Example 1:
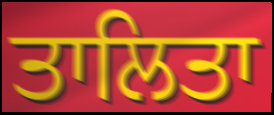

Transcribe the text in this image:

ਤਾਲਿਤਾ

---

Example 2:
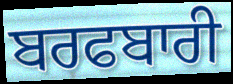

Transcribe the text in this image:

ਬਰਫਬਾਰੀ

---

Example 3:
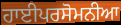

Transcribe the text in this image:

ਹਾਈਪਰਸੋਮਨੀਆ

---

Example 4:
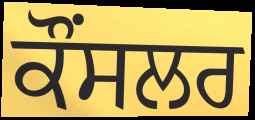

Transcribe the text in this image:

ਕੌੰਸਲਰ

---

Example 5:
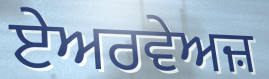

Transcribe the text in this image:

ਏਅਰਵੇਅਜ਼